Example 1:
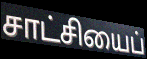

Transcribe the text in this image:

சாட்சியைப்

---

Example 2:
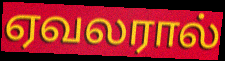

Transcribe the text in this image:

ஏவலரால்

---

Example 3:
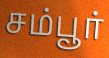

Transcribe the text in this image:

சம்பூர்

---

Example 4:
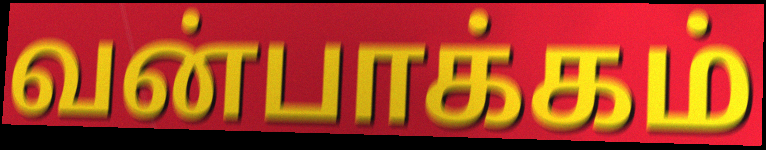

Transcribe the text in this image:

வன்பாக்கம்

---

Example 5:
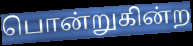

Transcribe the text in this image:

பொன்றுகின்ற